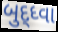
બુદ્ધ્વા